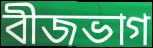
বীজভাগ